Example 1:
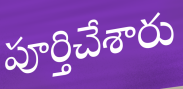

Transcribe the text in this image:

పూర్తిచేశారు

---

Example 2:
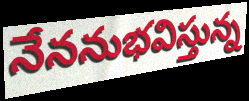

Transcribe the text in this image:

నేననుభవిస్తున్న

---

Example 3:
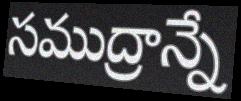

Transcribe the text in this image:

సముద్రాన్నే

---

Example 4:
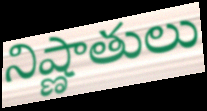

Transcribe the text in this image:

నిష్ణాతులు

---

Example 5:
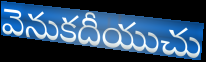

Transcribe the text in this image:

వెనుకదీయుచు